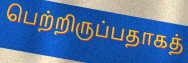
பெற்றிருப்பதாகத்